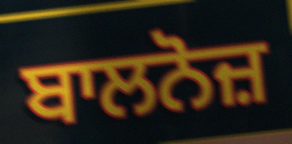
ਬਾਲਨੋਜ਼